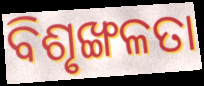
ବିଶୃଙ୍ଖଳତା